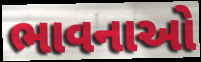
ભાવનાઓ